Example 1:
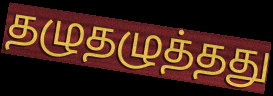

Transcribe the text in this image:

தழுதழுத்தது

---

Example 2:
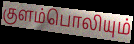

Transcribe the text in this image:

குளம்பொலியும்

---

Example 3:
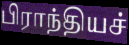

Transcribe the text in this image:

பிராந்தியச்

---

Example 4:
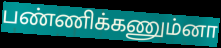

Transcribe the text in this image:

பண்ணிக்கணும்னா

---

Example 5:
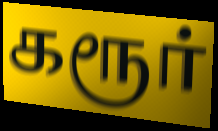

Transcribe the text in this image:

கரூர்